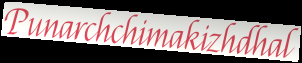
Punarchchimakizhdhal